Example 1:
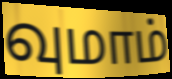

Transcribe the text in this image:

வுமாம்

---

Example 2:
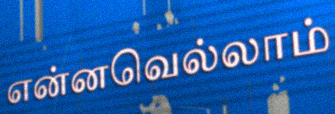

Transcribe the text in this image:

என்னவெல்லாம்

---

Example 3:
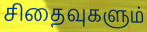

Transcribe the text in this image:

சிதைவுகளும்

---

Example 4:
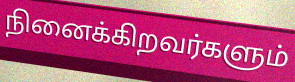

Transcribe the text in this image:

நினைக்கிறவர்களும்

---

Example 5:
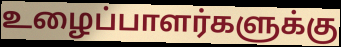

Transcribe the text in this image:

உழைப்பாளர்களுக்கு